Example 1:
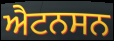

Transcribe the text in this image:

ਐਟਨਸਨ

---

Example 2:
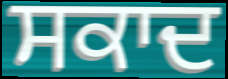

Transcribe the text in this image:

ਸਕਾਦ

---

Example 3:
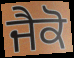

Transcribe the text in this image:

ਜੈਕੋ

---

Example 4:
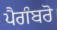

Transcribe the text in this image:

ਪੈਗੰਬਰੋ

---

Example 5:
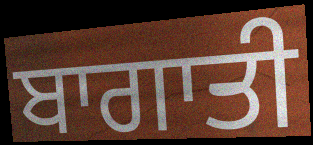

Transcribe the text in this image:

ਬਾਗਾਤੀ